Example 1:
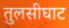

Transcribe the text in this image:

तुलसीघाट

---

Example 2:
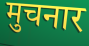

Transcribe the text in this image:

मुचनार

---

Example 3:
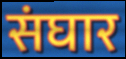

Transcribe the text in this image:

संघार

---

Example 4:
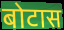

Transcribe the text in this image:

बोटास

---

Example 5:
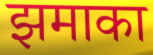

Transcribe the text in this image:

झमाका